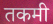
तकमी